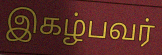
இகழ்பவர்